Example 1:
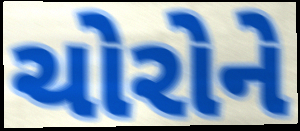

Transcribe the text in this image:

ચોરોને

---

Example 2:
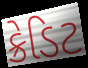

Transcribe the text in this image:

ક્રેડિટ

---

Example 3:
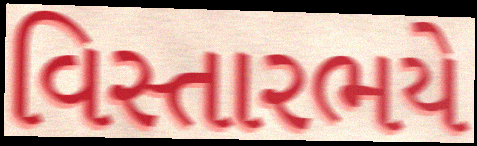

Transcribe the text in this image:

વિસ્તારભયે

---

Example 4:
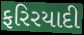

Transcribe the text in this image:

ફરિરયાદી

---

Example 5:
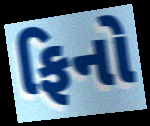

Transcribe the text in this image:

ફિનો